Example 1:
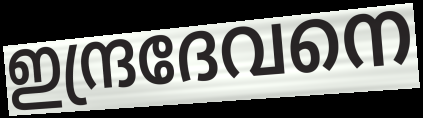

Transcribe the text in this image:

ഇന്ദ്രദേവനെ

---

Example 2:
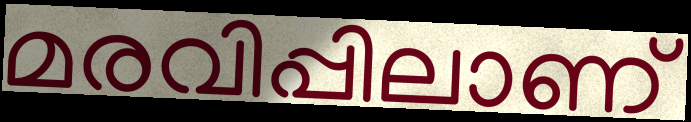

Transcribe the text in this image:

മരവിപ്പിലാണ്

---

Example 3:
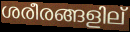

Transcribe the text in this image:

ശരീരങ്ങളില്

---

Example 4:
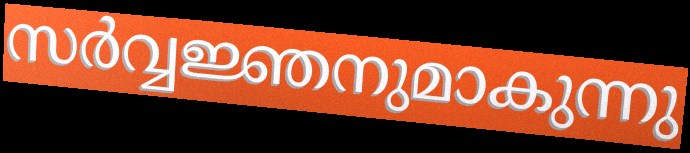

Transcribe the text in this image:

സർവ്വജ്ഞനുമാകുന്നു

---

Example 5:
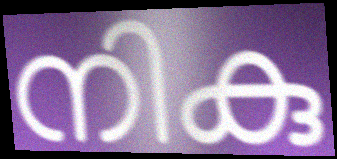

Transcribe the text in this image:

നികു